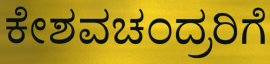
ಕೇಶವಚಂದ್ರರಿಗೆ